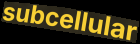
subcellular